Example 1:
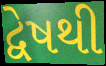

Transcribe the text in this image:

દ્વેષથી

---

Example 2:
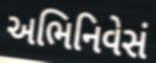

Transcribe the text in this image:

અભિનિવેસં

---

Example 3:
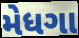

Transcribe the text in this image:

મેધગા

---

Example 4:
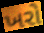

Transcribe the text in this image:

ખરો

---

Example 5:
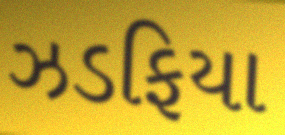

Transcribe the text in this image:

ઝડફિયા